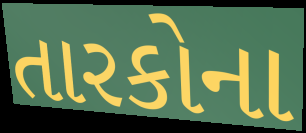
તારકોના